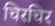
चिरचिर